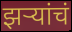
झर्‍यांचं